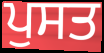
ਪੁਸਤ